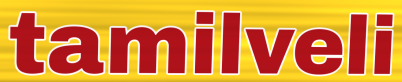
tamilveli